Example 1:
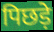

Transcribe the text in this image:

पिछड़े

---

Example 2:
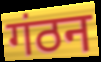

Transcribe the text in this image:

गंठन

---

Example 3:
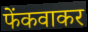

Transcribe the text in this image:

फेंकवाकर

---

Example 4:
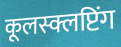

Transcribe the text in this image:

कूलस्क्लप्टिंग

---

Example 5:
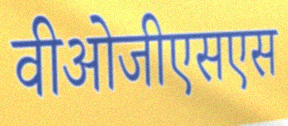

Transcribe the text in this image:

वीओजीएसएस